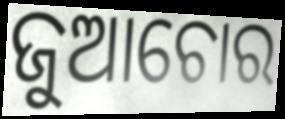
ଜୁଆଚୋର